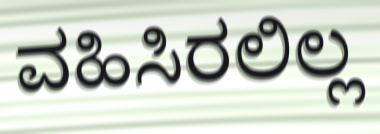
ವಹಿಸಿರಲಿಲ್ಲ